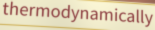
thermodynamically